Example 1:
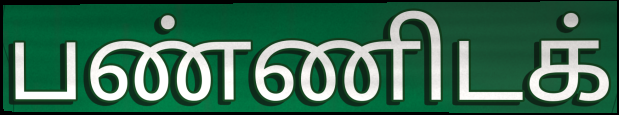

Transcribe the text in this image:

பண்ணிடக்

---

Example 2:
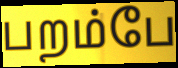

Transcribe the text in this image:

பறம்பே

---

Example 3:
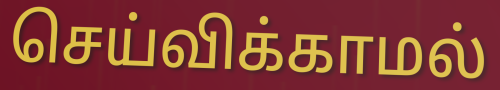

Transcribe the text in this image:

செய்விக்காமல்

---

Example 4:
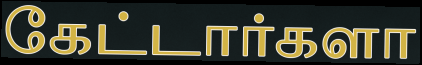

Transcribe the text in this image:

கேட்டார்களா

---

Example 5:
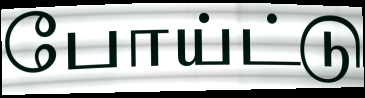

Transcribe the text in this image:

போய்ட்டு